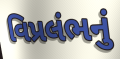
વિપ્રલંભનું